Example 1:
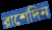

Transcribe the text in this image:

রাশেদিন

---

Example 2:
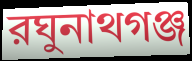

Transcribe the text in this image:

রঘুনাথগঞ্জ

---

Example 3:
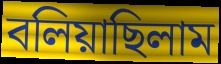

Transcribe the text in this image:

বলিয়াছিলাম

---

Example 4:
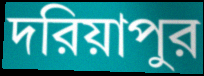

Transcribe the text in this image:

দরিয়াপুর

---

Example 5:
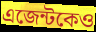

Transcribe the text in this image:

এজেন্টকেও